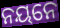
ନୟନେ